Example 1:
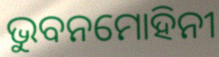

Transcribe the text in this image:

ଭୁବନମୋହିନୀ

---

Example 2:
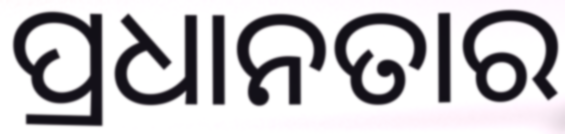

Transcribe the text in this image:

ପ୍ରଧାନତାର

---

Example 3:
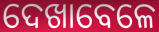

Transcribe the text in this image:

ଦେଖାବେଳେ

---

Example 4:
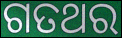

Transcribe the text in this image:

ଗତଥର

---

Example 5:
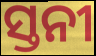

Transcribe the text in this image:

ସ୍ତନୀ